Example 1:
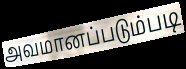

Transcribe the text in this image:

அவமானப்படும்படி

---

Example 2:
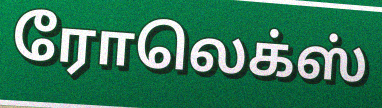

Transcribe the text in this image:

ரோலெக்ஸ்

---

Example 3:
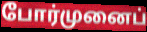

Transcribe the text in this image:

போர்முனைப்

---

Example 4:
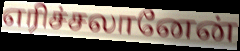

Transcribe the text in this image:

எரிச்சலானேன்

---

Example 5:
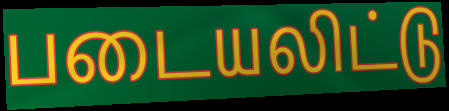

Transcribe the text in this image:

படையலிட்டு